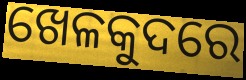
ଖେଳକୁଦରେ